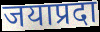
जयाप्रदा